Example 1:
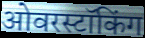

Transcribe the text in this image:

ओवरस्टॉकिंग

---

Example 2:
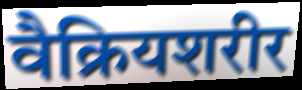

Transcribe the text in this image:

वैक्रियशरीर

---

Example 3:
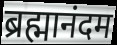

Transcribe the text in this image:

ब्रह्मानंदम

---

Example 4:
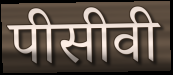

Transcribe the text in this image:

पीसीवी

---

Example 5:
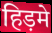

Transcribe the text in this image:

हिड़मे